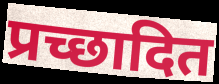
प्रच्छादित